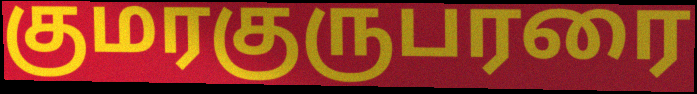
குமரகுருபரரை